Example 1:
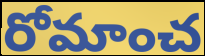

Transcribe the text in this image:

రోమాంచ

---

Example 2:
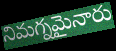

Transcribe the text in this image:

నిమగ్నమైనారు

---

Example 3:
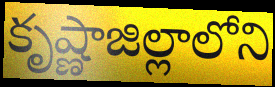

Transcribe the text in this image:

కృష్ణాజిల్లాలోని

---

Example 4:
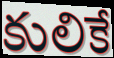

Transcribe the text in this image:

కులికే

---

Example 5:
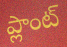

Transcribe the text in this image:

ప్లాంట్